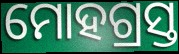
ମୋହଗ୍ରସ୍ତ